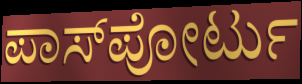
ಪಾಸ್‌ಪೋರ್ಟು